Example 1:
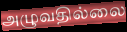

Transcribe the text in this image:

அழுவதில்லை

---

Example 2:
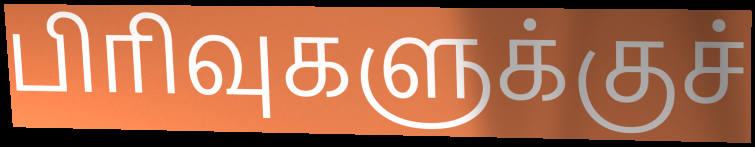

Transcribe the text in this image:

பிரிவுகளுக்குச்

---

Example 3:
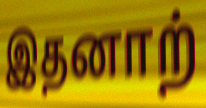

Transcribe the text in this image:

இதனாற்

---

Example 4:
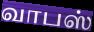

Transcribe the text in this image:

வாபஸ்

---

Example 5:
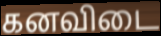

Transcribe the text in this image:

கனவிடை